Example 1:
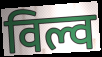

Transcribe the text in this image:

विल्व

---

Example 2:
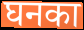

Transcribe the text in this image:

घनका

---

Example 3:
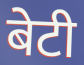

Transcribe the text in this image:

बेटी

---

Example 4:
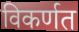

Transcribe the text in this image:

विकर्णत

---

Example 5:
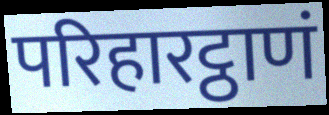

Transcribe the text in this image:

परिहारट्ठाणं